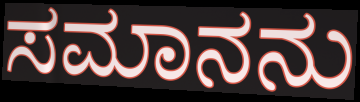
ಸಮಾನನು